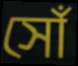
সোঁ